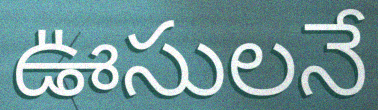
ఊసులనే